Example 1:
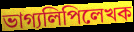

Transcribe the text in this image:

ভাগ্যলিপিলেখক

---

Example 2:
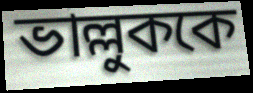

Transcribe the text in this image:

ভাল্লুককে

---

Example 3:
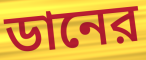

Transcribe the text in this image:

ডানের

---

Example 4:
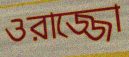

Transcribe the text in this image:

ওরাজ্জো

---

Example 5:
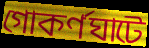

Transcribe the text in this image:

গোকর্ণঘাটে